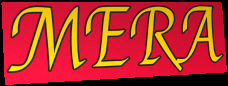
MERA